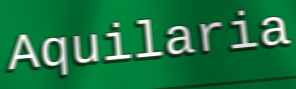
Aquilaria